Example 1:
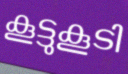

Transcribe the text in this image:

കൂട്ടുകൂടി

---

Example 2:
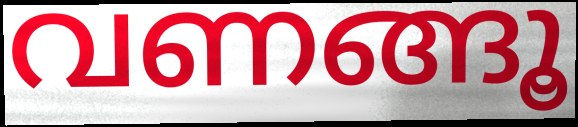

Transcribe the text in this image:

വണങ്ങൂ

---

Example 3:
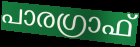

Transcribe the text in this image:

പാരഗ്രാഫ്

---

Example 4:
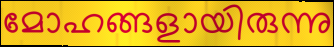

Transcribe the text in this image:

മോഹങ്ങളായിരുന്നു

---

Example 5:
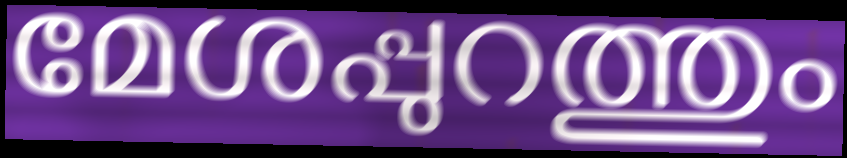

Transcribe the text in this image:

മേശപ്പുറത്തും